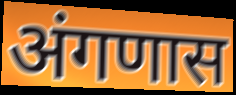
अंगणास